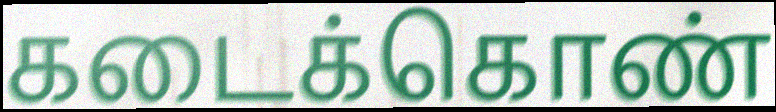
கடைக்கொண்